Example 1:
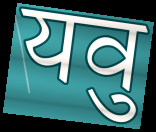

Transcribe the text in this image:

यवु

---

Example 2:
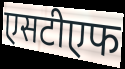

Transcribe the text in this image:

एसटीएफ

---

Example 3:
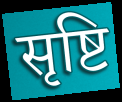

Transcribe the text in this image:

सृष्टि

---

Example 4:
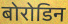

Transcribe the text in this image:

बोरोडिन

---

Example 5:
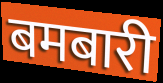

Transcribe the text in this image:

बमबारी